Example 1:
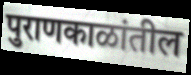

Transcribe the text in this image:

पुराणकाळांतील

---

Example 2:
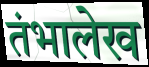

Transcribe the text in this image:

तंभालेख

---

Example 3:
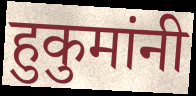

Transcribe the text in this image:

हुकुमांनी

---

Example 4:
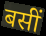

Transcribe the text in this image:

बसीं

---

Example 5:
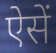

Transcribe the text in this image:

ऐसें